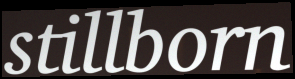
stillborn